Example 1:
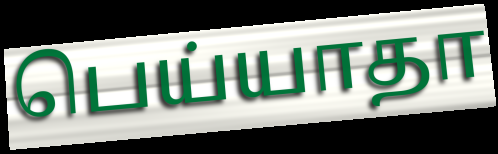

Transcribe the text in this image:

பெய்யாதா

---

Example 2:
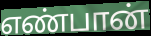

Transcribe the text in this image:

எண்பான்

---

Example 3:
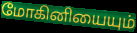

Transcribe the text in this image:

மோகினியையும்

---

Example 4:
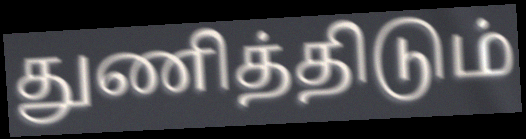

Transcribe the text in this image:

துணித்திடும்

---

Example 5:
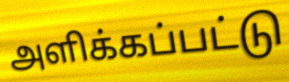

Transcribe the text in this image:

அளிக்கப்பட்டு